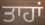
ਤਾਹਾਂ